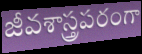
జీవశాస్త్రపరంగా